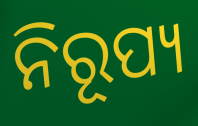
ନିରୂପ୍ୟ